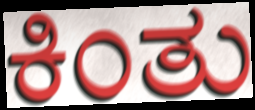
ಕಿಂತು